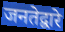
जनतेद्वारे